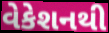
વેકેશનથી